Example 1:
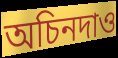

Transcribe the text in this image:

অচিনদাও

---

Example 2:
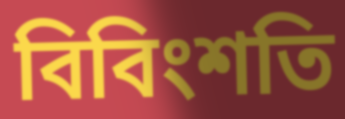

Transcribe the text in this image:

বিবিংশতি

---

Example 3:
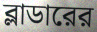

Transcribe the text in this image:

ব্লাডারের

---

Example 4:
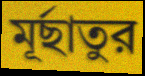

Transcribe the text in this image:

মূর্ছাতুর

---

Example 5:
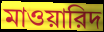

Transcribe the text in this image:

মাওয়ারিদ